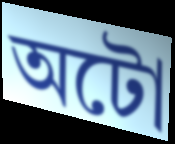
অটো